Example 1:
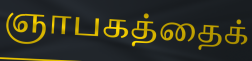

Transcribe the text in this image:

ஞாபகத்தைக்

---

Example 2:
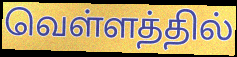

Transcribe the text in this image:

வெள்ளத்தில்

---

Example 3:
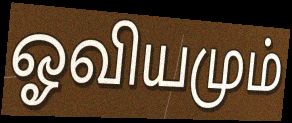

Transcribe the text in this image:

ஓவியமும்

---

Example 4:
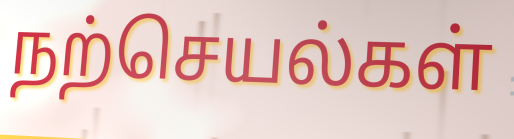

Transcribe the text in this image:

நற்செயல்கள்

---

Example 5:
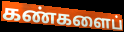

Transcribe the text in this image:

கண்களைப்